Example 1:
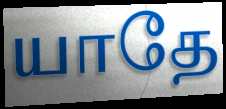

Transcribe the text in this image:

யாதே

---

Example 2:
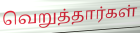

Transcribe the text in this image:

வெறுத்தார்கள்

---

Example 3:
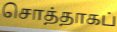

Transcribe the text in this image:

சொத்தாகப்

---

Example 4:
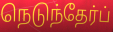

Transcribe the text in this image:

நெடுந்தேர்ப்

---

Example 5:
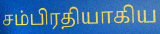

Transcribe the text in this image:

சம்பிரதியாகிய